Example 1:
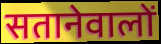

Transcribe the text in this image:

सतानेवालों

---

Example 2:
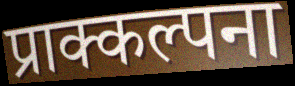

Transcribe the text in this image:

प्राक्कल्पना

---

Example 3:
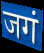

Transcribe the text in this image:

जगं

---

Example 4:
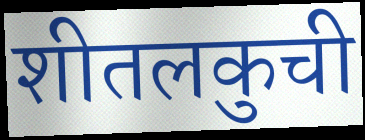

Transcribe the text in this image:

शीतलकुची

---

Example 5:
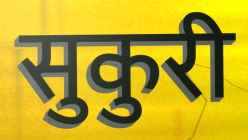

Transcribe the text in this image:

सुकुरी